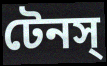
টেনস্